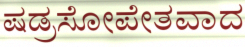
ಷಡ್ರಸೋಪೇತವಾದ